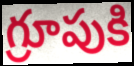
గ్రూపుకి